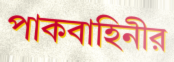
পাকবাহিনীর